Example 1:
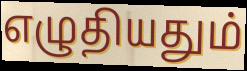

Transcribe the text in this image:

எழுதியதும்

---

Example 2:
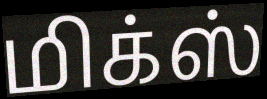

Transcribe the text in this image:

மிக்ஸ்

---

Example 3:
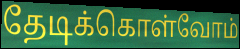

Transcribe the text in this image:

தேடிக்கொள்வோம்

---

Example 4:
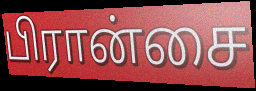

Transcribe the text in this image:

பிரான்சை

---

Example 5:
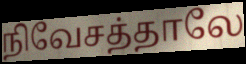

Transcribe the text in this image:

நிவேசத்தாலே